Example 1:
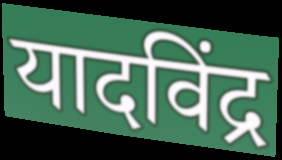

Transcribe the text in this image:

यादविंद्र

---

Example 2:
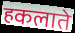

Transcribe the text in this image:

हकलाते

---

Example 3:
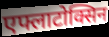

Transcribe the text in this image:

एफ्लाटोक्सिन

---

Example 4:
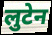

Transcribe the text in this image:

लुटेन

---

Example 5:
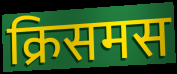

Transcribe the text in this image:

क्रिसमस